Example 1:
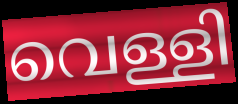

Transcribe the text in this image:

വെള്ളി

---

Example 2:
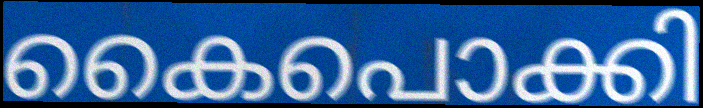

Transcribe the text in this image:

കൈപൊക്കി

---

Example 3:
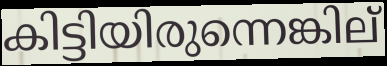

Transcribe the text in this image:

കിട്ടിയിരുന്നെങ്കില്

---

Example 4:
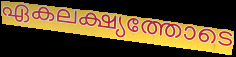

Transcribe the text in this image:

ഏകലക്ഷ്യത്തോടെ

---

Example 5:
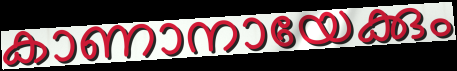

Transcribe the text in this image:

കാണാനായേക്കും